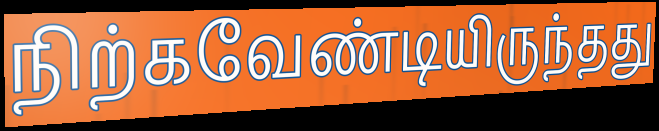
நிற்கவேண்டியிருந்தது